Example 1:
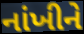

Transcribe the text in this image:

નાંખીને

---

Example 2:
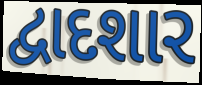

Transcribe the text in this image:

દ્વાદશાર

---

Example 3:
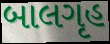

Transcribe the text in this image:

બાલગૃહ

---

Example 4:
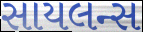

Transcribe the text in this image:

સાયલન્સ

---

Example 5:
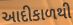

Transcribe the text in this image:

આદીકાળથી